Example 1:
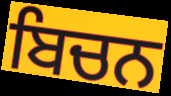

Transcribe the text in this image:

ਬਿਚਨ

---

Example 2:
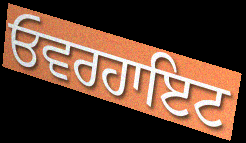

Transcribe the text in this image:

ਓਵਰਹਾਇਟ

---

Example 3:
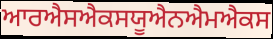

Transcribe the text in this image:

ਆਰਐਸਐਕਸਯੂਐਨਐਮਐਕਸ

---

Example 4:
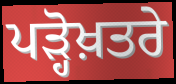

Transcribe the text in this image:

ਪੜ੍ਹੋਖ਼ਤਰੇ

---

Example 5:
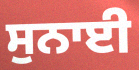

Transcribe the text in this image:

ਸੁਨਾਈ